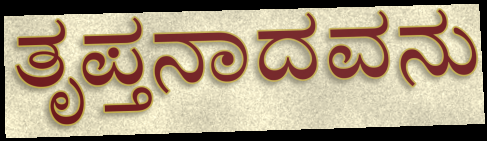
ತೃಪ್ತನಾದವನು